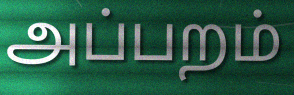
அப்பறம்